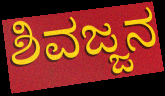
ಶಿವಜ್ಜನ